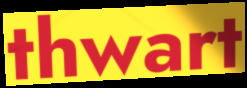
thwart